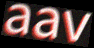
aav